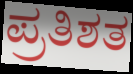
ಪ್ರತಿಶತ